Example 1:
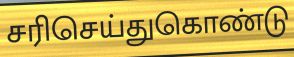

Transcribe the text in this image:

சரிசெய்துகொண்டு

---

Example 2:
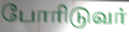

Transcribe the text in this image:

போரிடுவர்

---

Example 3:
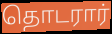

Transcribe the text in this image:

தொடரார்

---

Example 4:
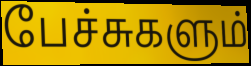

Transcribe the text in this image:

பேச்சுகளும்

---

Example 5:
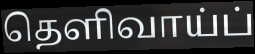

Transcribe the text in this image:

தெளிவாய்ப்